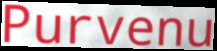
Purvenu